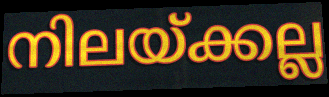
നിലയ്ക്കല്ല